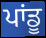
ਪਾਂਡੂ